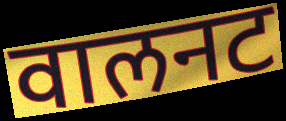
वालनट